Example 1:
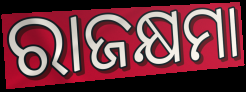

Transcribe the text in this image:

ରାଜକ୍ଷମା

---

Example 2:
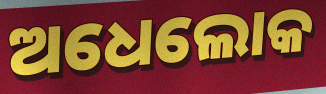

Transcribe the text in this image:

ଅଧେଲୋକ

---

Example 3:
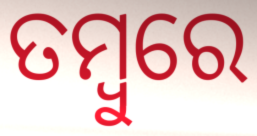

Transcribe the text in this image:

ତମ୍ବୁରେ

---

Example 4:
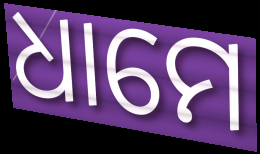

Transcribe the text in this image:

ଧାମେ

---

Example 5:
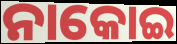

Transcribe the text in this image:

ନାକୋଇ